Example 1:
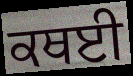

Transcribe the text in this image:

ਕਥਈ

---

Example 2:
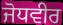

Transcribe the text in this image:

ਜੋਧਵੀਰ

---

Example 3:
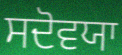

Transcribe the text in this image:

ਸਦੋਵਯਾ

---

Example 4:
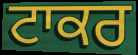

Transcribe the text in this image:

ਟਾਕਰ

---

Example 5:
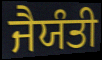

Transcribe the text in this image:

ਜੈਯੰਤੀ